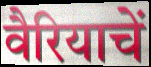
वैरियाचें